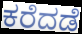
ಕರೆದಡೆ